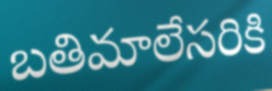
బతిమాలేసరికి